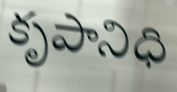
కృపానిధి